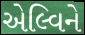
એલ્વિને